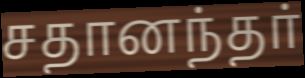
சதானந்தர்